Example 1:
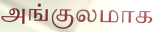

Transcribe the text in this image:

அங்குலமாக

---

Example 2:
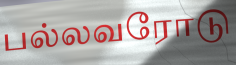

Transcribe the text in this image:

பல்லவரோடு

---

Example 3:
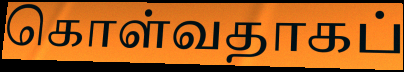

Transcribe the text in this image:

கொள்வதாகப்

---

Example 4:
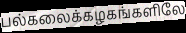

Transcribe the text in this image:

பல்கலைக்கழகங்களிலே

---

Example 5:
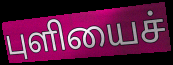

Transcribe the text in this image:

புளியைச்